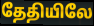
தேதியிலே